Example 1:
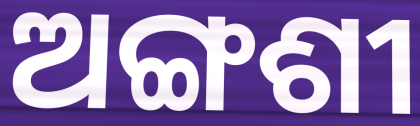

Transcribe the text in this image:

ଅଙ୍ଗଶୀ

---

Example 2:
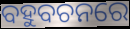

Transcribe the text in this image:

ବହୁବଚନରେ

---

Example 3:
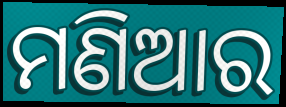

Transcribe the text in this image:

ମଣିଆର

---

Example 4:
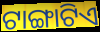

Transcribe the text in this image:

ଟାଙ୍ଗାଟିଏ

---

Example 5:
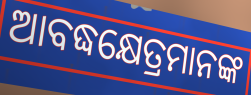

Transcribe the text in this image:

ଆବଦ୍ଧକ୍ଷେତ୍ରମାନଙ୍କ